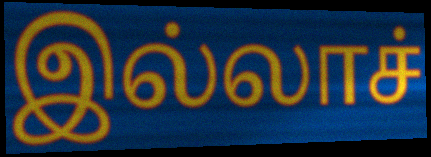
இல்லாச்